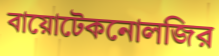
বায়োটেকনোলজির